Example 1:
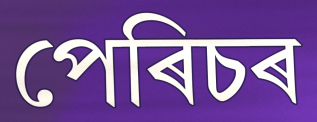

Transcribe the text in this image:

পেৰিচৰ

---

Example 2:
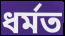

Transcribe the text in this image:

ধৰ্মত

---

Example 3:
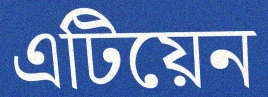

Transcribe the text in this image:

এটিয়েন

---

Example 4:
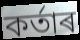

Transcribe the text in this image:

কৰ্তাৰ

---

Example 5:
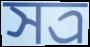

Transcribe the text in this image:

সত্ৰ